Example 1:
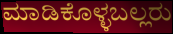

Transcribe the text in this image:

ಮಾಡಿಕೊಳ್ಳಬಲ್ಲರು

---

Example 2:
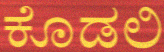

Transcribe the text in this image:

ಕೊಡಲಿ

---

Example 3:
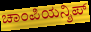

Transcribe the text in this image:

ಚಾಂಪಿಯನ್ಶಿಪ್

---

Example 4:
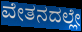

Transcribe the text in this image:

ವೇತನದಲ್ಲೇ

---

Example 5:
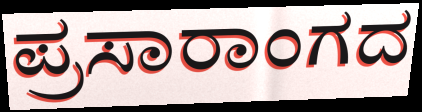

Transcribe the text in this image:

ಪ್ರಸಾರಾಂಗದ